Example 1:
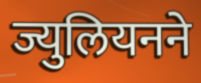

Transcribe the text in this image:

ज्युलियनने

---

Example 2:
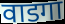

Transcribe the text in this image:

वाडगा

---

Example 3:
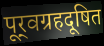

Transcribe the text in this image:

पूर्वग्रहदूषित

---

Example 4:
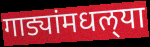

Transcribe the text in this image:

गाड्यांमधल्या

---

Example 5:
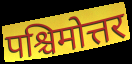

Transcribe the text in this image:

पश्चिमोत्तर